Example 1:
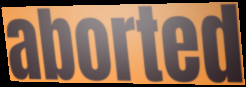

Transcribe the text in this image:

aborted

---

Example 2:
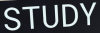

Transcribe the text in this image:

STUDY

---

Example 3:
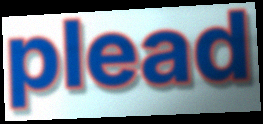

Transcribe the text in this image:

plead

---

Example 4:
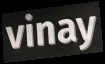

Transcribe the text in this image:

vinay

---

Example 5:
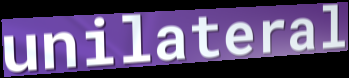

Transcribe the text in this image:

unilateral